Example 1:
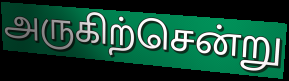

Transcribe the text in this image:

அருகிற்சென்று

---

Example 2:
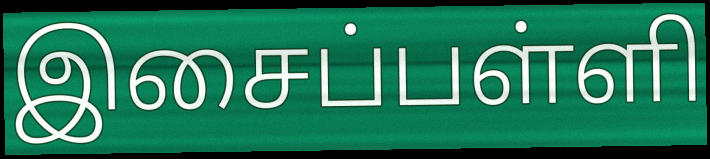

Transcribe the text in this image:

இசைப்பள்ளி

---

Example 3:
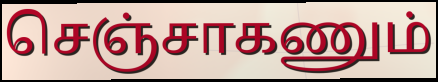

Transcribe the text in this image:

செஞ்சாகணும்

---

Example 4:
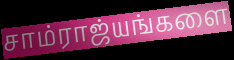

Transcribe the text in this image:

சாம்ராஜ்யங்களை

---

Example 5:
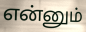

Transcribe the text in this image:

என்னும்